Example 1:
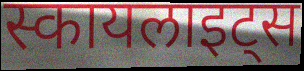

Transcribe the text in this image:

स्कायलाइट्स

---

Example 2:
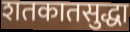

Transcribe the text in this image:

शतकातसुद्धा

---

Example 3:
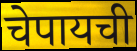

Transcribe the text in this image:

चेपायची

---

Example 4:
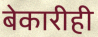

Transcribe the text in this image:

बेकारीही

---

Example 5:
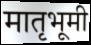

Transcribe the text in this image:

मातृभूमी